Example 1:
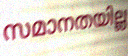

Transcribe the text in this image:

സമാനതയില്ല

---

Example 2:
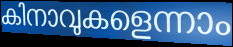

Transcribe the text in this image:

കിനാവുകളെന്നാം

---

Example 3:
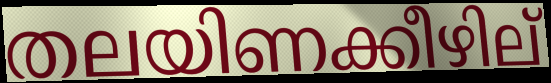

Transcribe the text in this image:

തലയിണക്കീഴില്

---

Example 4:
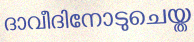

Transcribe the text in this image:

ദാവീദിനോടുചെയ്ത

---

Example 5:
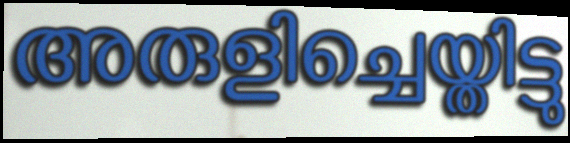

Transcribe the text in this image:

അരുളിച്ചെയ്തിട്ടു